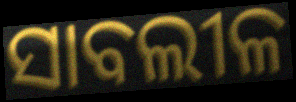
ସାବଲୀଳ